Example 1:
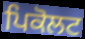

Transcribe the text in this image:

ਪਿਕੋਲਟ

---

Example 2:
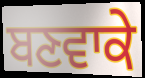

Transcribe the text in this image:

ਬਣਵਾਕੇ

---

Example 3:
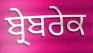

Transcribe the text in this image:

ਬ੍ਰੇਬਰੇਕ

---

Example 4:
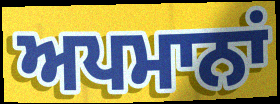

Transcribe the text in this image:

ਅਪਮਾਨਾਂ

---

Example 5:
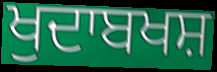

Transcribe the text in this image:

ਖੁਦਾਬਖਸ਼